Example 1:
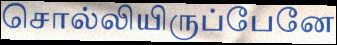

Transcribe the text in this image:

சொல்லியிருப்பேனே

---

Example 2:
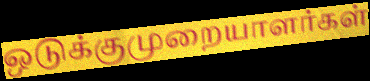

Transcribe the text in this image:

ஒடுக்குமுறையாளர்கள்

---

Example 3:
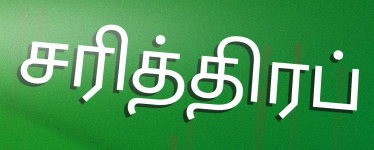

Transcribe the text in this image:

சரித்திரப்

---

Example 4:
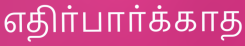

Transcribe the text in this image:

எதிர்பார்க்காத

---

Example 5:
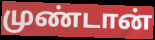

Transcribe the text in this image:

முண்டான்